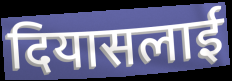
दियासलाई